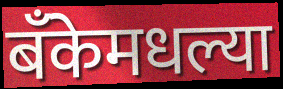
बँकेमधल्या